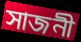
সাজনী